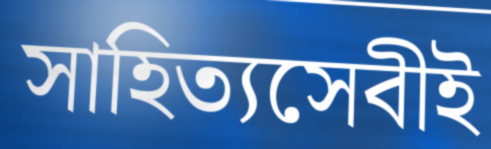
সাহিত্যসেবীই